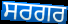
ਸਰਗਰ